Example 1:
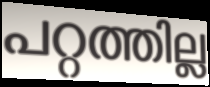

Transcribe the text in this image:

പറ്റത്തില്ല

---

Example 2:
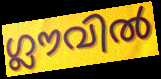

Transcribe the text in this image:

ഗ്ലൗവിൽ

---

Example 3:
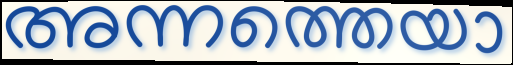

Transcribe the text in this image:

അന്നത്തെയാ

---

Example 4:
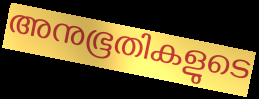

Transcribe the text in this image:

അനുഭൂതികളുടെ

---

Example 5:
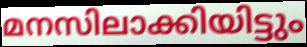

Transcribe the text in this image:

മനസിലാക്കിയിട്ടും